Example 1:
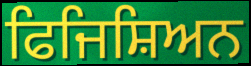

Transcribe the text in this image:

ਫਿਜਿਸ਼ਿਅਨ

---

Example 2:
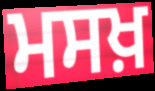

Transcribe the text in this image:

ਮਸਖ਼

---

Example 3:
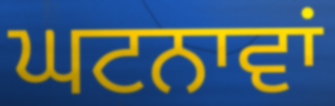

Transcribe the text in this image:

ਘਟਨਾਵਾਂ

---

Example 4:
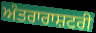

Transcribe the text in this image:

ਅੰਤਰਾਰਾਸ਼ਟਰੀ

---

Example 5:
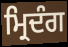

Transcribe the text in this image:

ਮ੍ਰਿਦੰਗ